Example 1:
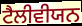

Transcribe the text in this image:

ਟੈਲੀਵੀਯਨ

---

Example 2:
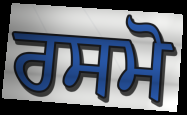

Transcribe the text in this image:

ਰਸਮੋ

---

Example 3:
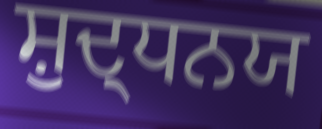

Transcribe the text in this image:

ਸ਼ੁਦ੍ਧਨਯ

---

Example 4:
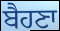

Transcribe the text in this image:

ਬੈਹਣਾ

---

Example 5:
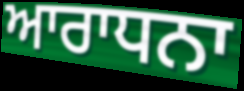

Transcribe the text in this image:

ਆਰਾਧਨਾ